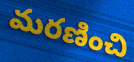
మరణించి